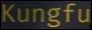
Kungfu